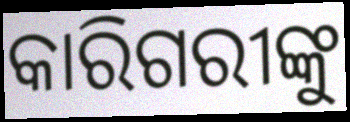
କାରିଗରୀଙ୍କୁ